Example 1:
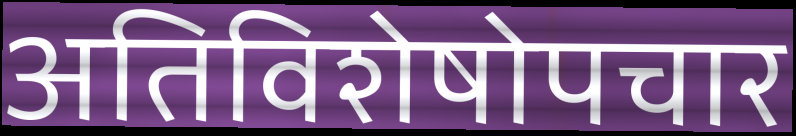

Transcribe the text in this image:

अतिविशेषोपचार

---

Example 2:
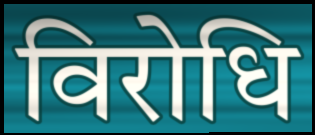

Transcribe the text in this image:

विरोधि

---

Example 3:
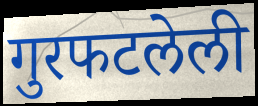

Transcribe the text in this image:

गुरफटलेली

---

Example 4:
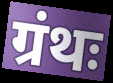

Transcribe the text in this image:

ग्रंथः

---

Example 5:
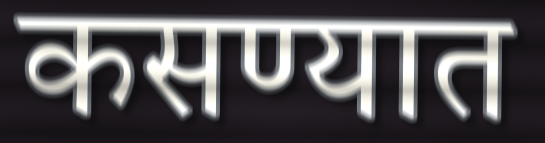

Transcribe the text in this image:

कसण्यात